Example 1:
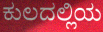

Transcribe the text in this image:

ಕುಲದಲ್ಲಿಯ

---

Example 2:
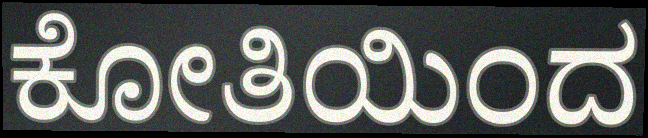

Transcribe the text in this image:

ಕೋತಿಯಿಂದ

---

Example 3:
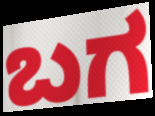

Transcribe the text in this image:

ಬಗ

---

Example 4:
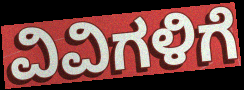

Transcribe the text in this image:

ವಿವಿಗಳಿಗೆ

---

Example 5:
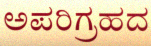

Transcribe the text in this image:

ಅಪರಿಗ್ರಹದ